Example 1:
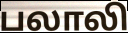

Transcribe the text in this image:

பலாலி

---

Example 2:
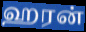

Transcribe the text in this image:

ஹரன்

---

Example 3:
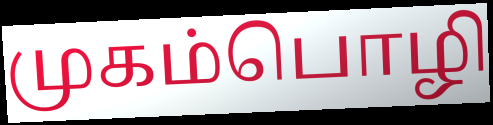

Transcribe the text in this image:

முகம்பொழி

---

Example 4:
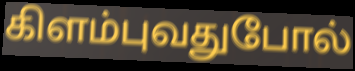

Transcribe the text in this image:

கிளம்புவதுபோல்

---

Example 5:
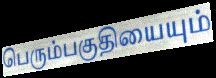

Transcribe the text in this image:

பெரும்பகுதியையும்